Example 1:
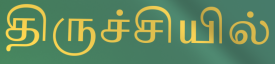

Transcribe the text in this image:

திருச்சியில்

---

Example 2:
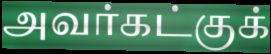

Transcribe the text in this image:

அவர்கட்குக்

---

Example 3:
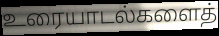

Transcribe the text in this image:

உரையாடல்களைத்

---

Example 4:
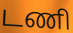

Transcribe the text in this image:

டணி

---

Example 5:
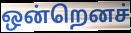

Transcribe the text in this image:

ஒன்றெனச்